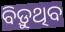
ବିଡ଼ୁଥିବ